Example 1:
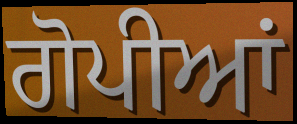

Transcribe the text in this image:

ਗੋਪੀਆਂ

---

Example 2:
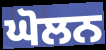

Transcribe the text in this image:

ਘੋਲਨ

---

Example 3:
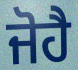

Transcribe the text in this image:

ਜੋਹੈ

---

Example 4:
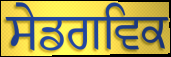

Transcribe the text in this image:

ਸੇਡਗਵਿਕ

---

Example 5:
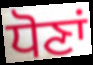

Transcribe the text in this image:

ਧੋਣਾਂ